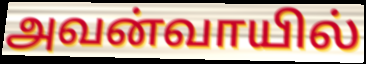
அவன்வாயில்